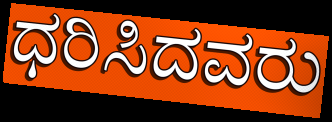
ಧರಿಸಿದವರು